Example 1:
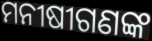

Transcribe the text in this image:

ମନୀଷୀଗଣଙ୍କ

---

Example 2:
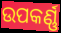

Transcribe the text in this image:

ଉପକର୍ଣ୍ଣ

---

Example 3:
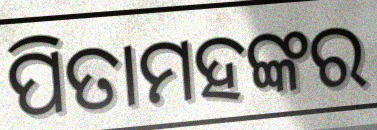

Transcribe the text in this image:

ପିତାମହଙ୍କର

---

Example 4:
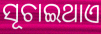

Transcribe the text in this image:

ସୂଚାଇଥାଏ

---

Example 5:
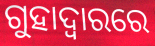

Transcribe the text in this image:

ଗୁହାଦ୍ଵାରରେ